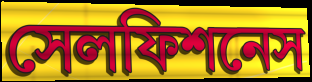
সেলফিশনেস